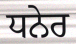
ਧਨੇਰ